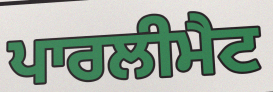
ਪਾਰਲੀਮੈਟ